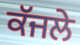
ਕੱਜਲੇ